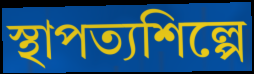
স্থাপত্যশিল্পে